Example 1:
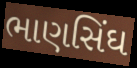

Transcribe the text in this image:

ભાણસિંઘ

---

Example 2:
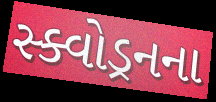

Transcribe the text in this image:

સ્ક્વોડ્રનના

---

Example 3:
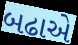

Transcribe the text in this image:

બઢાએ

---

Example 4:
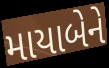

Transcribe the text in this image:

માયાબેને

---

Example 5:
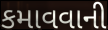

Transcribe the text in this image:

કમાવવાની